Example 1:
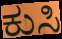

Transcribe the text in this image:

ಕುಸಿ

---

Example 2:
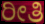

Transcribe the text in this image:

ರೀತಿ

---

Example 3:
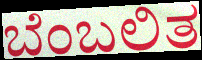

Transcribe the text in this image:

ಬೆಂಬಲಿತ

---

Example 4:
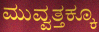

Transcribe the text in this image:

ಮುವ್ವತ್ತಕ್ಕೂ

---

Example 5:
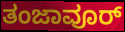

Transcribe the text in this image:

ತಂಜಾವೂರ್